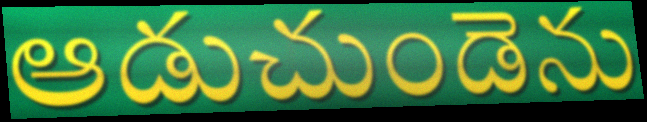
ఆడుచుండెను